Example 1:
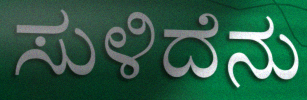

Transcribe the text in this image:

ಸುಳಿದೆನು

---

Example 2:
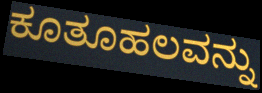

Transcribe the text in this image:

ಕೂತೂಹಲವನ್ನು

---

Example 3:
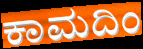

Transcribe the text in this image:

ಕಾಮದಿಂ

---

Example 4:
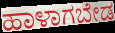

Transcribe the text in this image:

ಹಾಳಾಗಬೇಡ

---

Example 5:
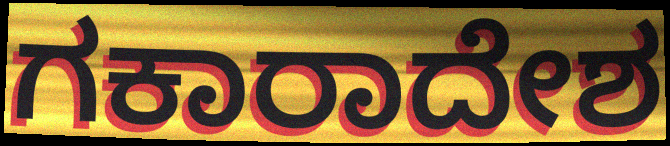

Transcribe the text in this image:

ಗಕಾರಾದೇಶ